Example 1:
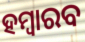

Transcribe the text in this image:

ହମ୍ବାରବ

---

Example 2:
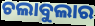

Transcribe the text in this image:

ଚଲାବୁଲାର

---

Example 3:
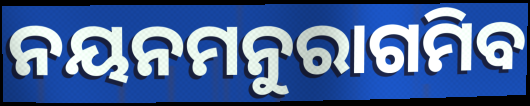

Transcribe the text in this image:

ନୟନମନୁରାଗମିବ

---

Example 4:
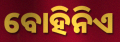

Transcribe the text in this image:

ବୋହିନିଏ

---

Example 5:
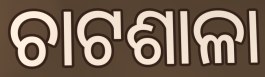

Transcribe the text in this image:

ଚାଟଶାଳା